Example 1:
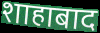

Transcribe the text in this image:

शाहाबाद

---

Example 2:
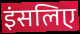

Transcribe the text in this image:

इंसलिए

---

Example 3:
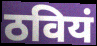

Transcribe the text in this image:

ठवियं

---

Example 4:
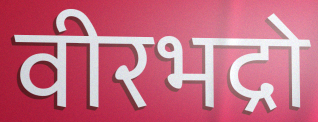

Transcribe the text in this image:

वीरभद्रो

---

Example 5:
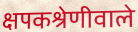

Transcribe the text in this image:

क्षपकश्रेणीवाले